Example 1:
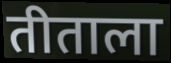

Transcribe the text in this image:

तीताला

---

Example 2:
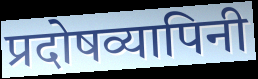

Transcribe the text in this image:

प्रदोषव्यापिनी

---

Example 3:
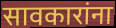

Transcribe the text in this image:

सावकारांना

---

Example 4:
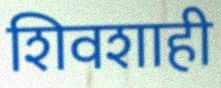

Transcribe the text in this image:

शिवशाही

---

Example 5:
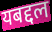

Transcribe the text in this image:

यबद्दल